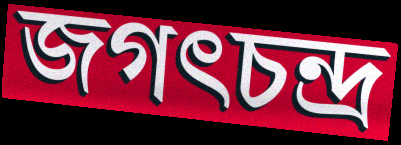
জগৎচন্দ্র